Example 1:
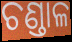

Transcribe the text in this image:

ଚଣ୍ଡାଳ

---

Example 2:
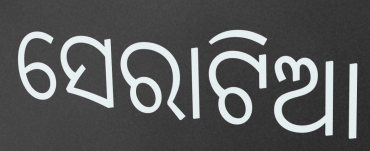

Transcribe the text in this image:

ସେରାଟିଆ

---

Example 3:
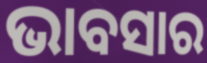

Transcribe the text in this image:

ଭାବସାର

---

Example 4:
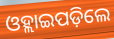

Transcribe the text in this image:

ଓହ୍ଲାଇପଡ଼ିଲେ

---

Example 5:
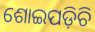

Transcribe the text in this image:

ଶୋଇପଡ଼ିଚି